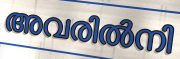
അവരിൽനി